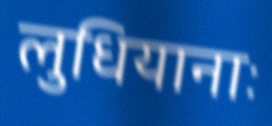
लुधियानाः